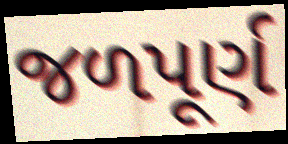
જળપૂર્ણ